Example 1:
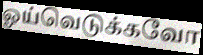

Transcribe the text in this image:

ஓய்வெடுக்கவோ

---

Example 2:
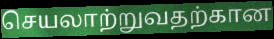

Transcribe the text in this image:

செயலாற்றுவதற்கான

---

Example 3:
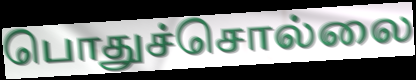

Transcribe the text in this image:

பொதுச்சொல்லை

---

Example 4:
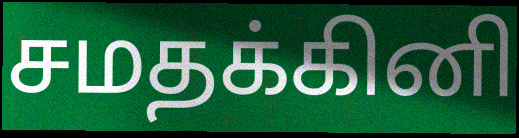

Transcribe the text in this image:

சமதக்கினி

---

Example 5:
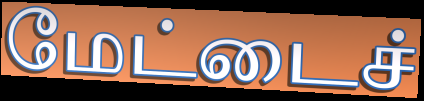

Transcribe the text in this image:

மேட்டைச்